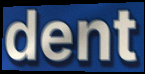
dent